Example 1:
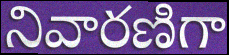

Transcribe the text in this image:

నివారణిగా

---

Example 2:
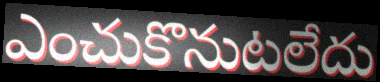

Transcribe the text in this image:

ఎంచుకొనుటలేదు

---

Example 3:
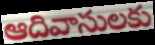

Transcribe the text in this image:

ఆదివాసులకు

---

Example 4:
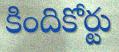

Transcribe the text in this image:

కిందికోర్టు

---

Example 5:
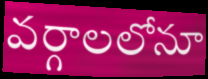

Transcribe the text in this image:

వర్గాలలోనూ